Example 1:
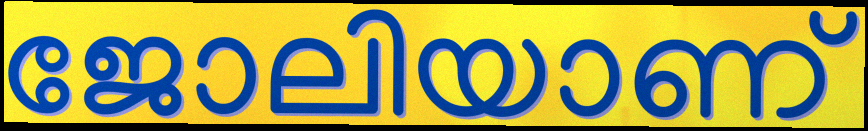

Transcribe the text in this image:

ജോലിയാണ്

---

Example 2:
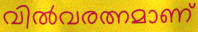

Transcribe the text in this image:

വിൽവരത്നമാണ്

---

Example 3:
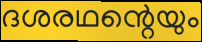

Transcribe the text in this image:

ദശരഥന്റെയും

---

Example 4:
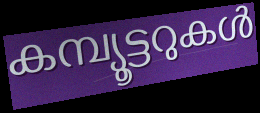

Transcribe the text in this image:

കമ്പ്യൂട്ടറുകൾ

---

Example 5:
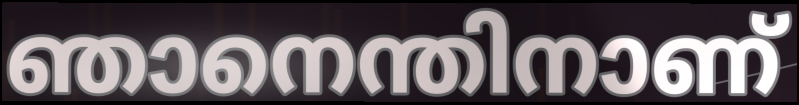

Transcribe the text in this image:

ഞാനെന്തിനാണ്